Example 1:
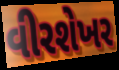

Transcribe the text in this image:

વીરશેખર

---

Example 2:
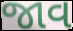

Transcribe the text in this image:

જાવ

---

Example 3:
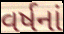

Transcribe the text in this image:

વર્ષનાં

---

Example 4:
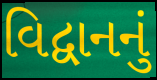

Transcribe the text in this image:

વિદ્વાનનું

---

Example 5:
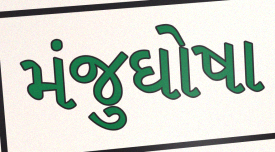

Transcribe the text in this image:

મંજુઘોષા